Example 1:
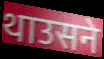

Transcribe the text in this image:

थाउसने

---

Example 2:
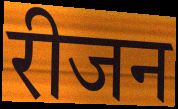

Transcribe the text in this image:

रीजन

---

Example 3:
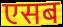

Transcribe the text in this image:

एसब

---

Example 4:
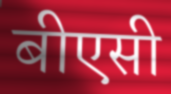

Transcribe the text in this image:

बीएसी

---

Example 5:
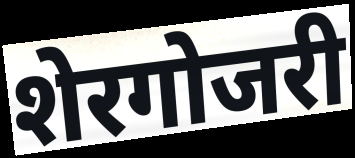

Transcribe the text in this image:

शेरगोजरी